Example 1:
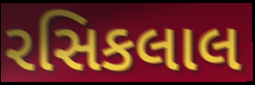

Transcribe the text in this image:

રસિકલાલ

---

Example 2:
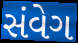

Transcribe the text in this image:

સંવેગ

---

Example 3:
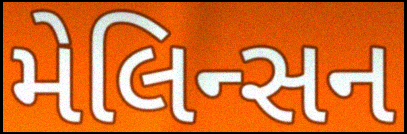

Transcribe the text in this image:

મેલિન્સન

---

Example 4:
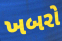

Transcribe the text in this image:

ખબરો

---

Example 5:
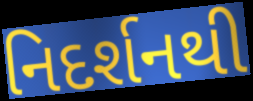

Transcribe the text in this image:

નિદર્શનથી